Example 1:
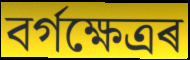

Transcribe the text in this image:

বৰ্গক্ষেত্ৰৰ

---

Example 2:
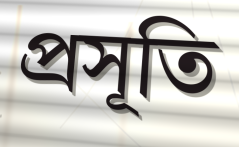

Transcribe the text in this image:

প্ৰসূতি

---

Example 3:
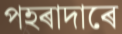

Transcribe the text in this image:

পহৰাদাৰে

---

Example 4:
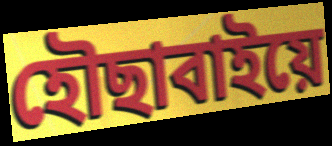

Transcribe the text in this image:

হৌছাবাইয়ে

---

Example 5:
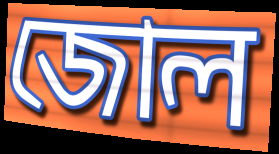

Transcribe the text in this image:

জোল